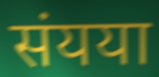
संयया